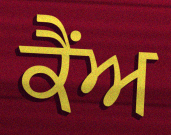
ਕੈਂਅ